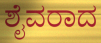
ಶೈವರಾದ